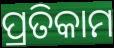
ପ୍ରତିକାମ